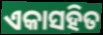
ଏକାସହିତ